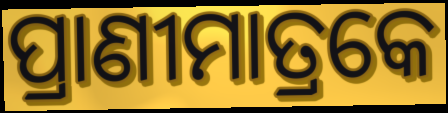
ପ୍ରାଣୀମାତ୍ରକେ